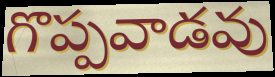
గొప్పవాడవు